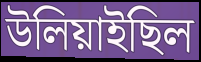
উলিয়াইছিল